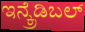
ಇನ್ಕ್ರೆಡಿಬಲ್